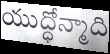
యుద్ధోన్మాది